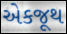
એકજૂથ